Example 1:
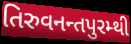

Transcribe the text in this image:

તિરુવનન્તપુરમ્થી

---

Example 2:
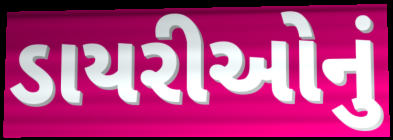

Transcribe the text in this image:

ડાયરીઓનું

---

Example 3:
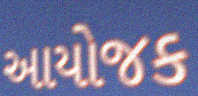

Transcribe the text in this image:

આયોજક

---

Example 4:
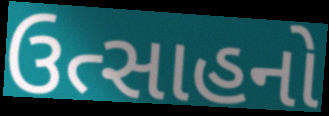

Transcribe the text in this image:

ઉત્સાહનો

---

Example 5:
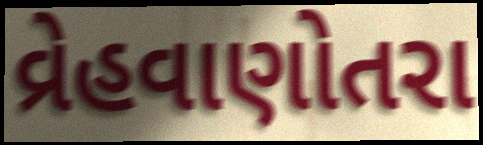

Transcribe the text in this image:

વ્રેહવાણોતરા